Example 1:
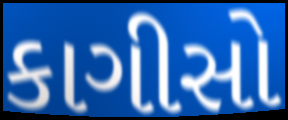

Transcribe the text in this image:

કાગીસો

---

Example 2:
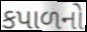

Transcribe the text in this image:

કપાળનો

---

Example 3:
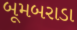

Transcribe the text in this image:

બૂમબરાડા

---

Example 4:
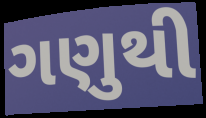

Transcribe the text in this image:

ગણુથી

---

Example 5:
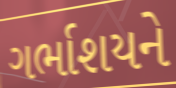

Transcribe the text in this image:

ગર્ભાશયને